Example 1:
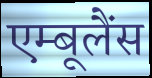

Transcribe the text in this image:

एम्बूलैंस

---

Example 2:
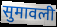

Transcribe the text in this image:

सुमावली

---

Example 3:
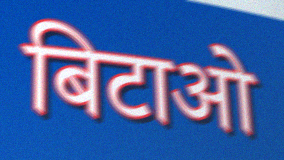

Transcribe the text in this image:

बिटाओ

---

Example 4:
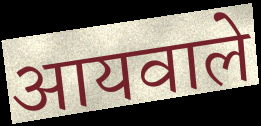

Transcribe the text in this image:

आयवाले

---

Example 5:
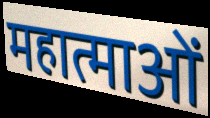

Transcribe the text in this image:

महात्‍माओं